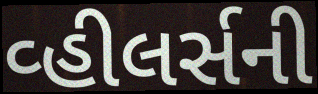
વ્હીલર્સની